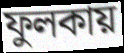
ফুলকায়